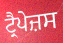
ਟ੍ਰੈਪੇਜ਼ਸ